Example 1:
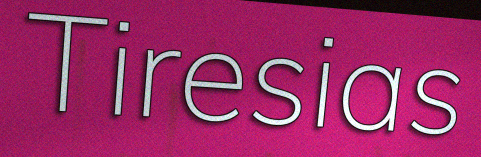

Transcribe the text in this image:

Tiresias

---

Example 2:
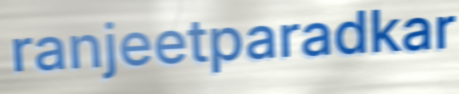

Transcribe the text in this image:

ranjeetparadkar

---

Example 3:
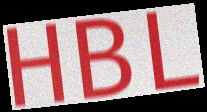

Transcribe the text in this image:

HBL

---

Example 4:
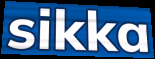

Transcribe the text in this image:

sikka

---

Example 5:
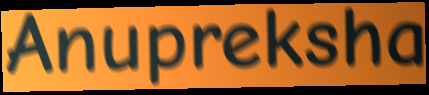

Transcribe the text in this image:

Anupreksha